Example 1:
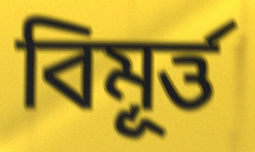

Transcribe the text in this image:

বিমূৰ্ত্ত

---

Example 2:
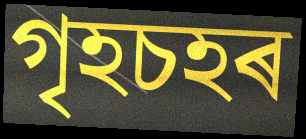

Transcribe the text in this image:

গৃহচহৰ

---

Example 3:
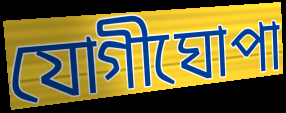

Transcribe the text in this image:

যোগীঘোপা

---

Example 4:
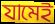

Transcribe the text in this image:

যামেই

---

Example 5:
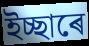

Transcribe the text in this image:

ইচ্ছাৰে